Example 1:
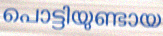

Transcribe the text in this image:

പൊട്ടിയുണ്ടായ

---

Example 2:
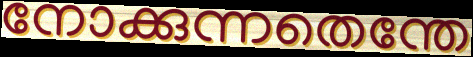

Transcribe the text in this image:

നോക്കുന്നതെന്തേ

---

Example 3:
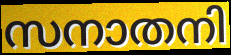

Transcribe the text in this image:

സനാതനി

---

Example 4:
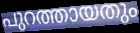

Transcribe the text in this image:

പുറത്തായതും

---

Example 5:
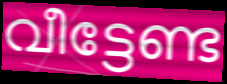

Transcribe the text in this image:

വീട്ടേണ്ട